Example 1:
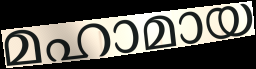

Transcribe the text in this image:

മഹാമായ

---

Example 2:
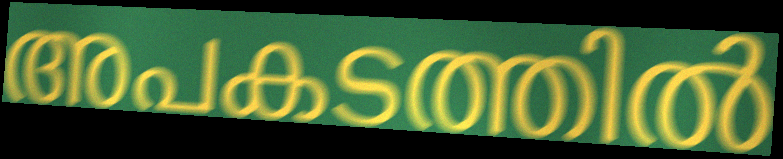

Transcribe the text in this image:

അപകടത്തിൽ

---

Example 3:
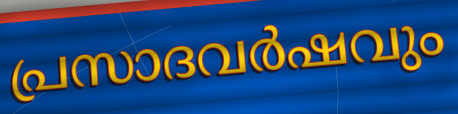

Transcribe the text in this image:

പ്രസാദവർഷവും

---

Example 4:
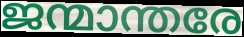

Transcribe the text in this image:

ജന്മാന്തരേ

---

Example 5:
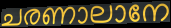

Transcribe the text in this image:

ചരണാലാനേ